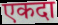
एकदा